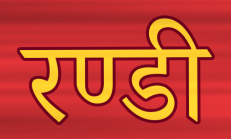
रण्डी